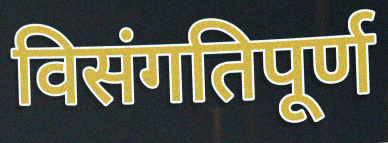
विसंगतिपूर्ण